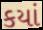
કયાં